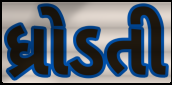
ધ્રોડતી